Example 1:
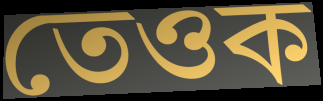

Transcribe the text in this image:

তেওক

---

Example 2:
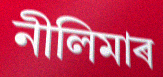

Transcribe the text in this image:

নীলিমাৰ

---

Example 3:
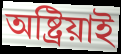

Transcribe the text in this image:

অষ্ট্ৰিয়াই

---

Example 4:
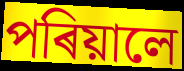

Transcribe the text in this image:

পৰিয়ালে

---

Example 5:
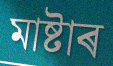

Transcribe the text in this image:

মাষ্টাৰ